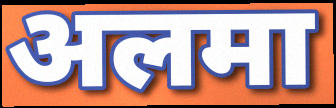
अलमा